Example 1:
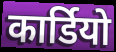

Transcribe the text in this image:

कार्डियो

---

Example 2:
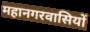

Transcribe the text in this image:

महानगरवासियों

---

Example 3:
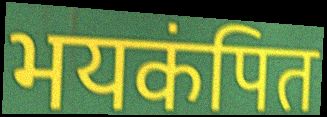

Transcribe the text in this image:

भयकंपित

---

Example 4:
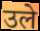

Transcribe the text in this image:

उले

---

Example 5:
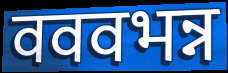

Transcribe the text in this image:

वववभन्न